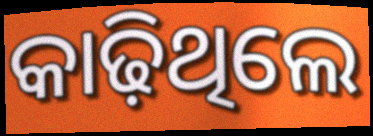
କାଢ଼ିଥିଲେ